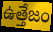
ఉత్తేజం